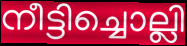
നീട്ടിച്ചൊല്ലി